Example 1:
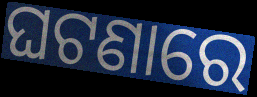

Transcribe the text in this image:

ଘଟଣାରେ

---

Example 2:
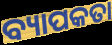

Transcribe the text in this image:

ବ୍ୟାପକତା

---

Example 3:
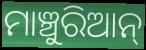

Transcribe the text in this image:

ମାଞ୍ଚୁରିଆନ୍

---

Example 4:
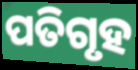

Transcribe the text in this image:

ପତିଗୃହ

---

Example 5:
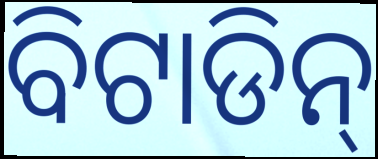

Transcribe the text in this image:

ବିଟାଡିନ୍